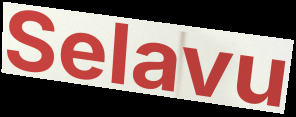
Selavu